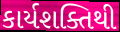
કાર્યશક્તિથી